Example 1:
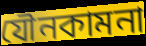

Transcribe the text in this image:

যৌনকামনা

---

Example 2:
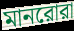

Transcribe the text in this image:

মানরোরা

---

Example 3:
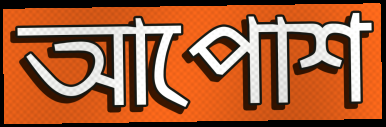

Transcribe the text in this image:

আপোশ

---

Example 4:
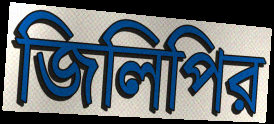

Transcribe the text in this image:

জিলিপির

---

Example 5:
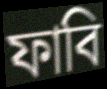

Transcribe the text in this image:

ফাবি